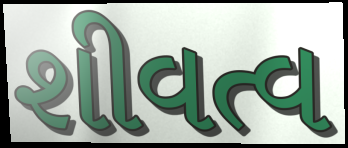
શીવત્વ